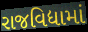
રાજવિદ્યામાં